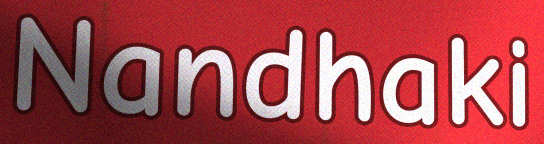
Nandhaki